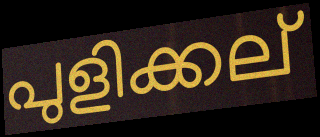
പുളിക്കല്